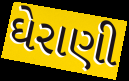
ઘેરાણી